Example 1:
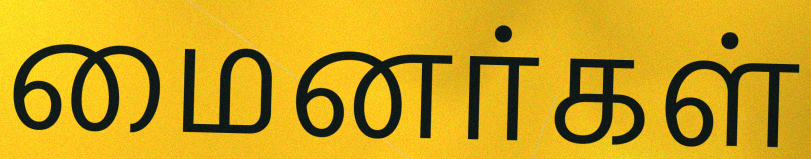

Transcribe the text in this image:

மைனர்கள்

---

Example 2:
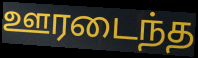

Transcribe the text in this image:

ஊரடைந்த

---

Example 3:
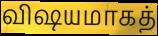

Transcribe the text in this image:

விஷயமாகத்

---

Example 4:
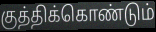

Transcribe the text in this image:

குத்திக்கொண்டும்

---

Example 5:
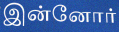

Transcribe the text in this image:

இன்னோர்